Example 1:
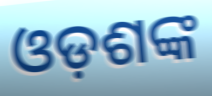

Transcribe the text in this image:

ଓଡ଼ଶଙ୍କ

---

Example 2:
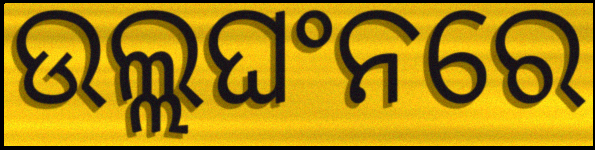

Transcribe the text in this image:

ଉଲ୍ଲଘଂନରେ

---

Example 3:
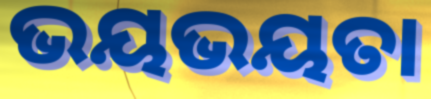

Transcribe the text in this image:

ଭୟଭୟତା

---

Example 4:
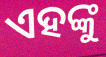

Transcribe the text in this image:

ଏହଙ୍କୁ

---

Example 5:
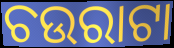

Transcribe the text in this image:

ଚଉରାଟା